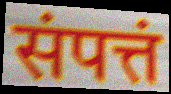
संपत्तं